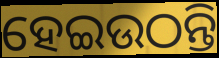
ହେଇଉଠନ୍ତି